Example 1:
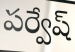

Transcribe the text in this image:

పర్వేష్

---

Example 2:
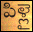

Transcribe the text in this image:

పిళ్లై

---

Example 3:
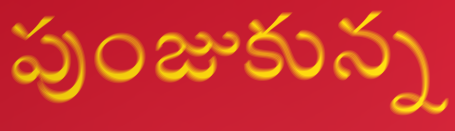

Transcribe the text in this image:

పుంజుకున్న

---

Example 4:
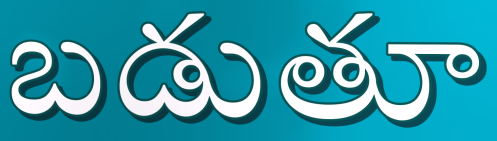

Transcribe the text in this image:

బడుతూ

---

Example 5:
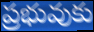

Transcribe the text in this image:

ప్రభువుకు